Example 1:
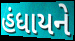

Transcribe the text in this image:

હંધાયને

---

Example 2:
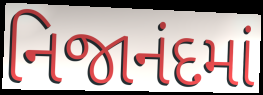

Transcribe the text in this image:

નિજાનંદમાં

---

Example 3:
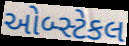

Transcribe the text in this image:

ઓબ્સ્ટેકલ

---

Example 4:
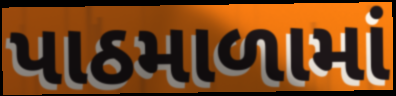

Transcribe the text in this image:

પાઠમાળામાં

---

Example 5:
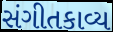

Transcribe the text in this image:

સંગીતકાવ્ય